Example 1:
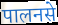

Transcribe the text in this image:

पालनसे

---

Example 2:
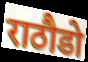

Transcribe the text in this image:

राठौडो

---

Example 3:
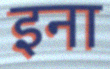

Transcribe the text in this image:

इना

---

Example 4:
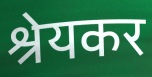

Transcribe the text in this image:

श्रेयकर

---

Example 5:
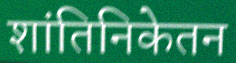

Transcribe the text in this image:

शांतिनिकेतन